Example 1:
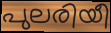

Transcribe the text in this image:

പുലരിയീ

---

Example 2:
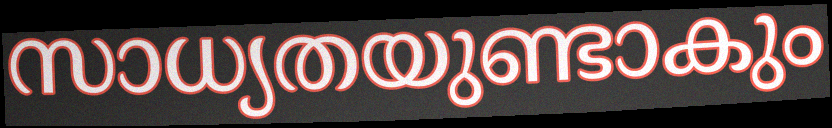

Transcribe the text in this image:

സാധ്യതയുണ്ടാകും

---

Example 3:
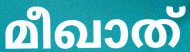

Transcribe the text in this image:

മീഖാത്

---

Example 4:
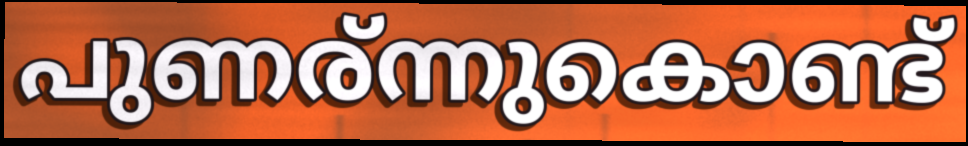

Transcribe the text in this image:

പുണര്ന്നുകൊണ്ട്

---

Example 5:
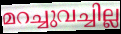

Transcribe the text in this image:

മറച്ചുവച്ചില്ല